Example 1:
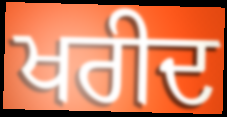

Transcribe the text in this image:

ਖਰੀਦ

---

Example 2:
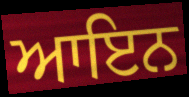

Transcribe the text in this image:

ਆਇਨ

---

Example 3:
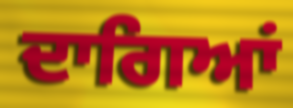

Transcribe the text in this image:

ਦਾਗਿਆਂ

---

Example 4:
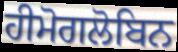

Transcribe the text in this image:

ਹੀਮੋਗਲੋਬਿਨ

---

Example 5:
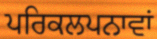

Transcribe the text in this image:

ਪਰਿਕਲਪਨਾਵਾਂ